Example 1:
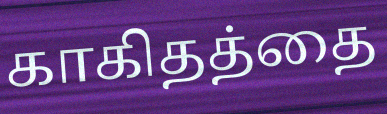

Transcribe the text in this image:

காகிதத்தை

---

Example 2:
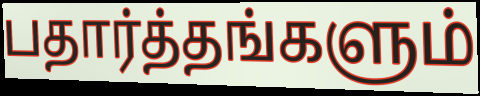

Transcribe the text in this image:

பதார்த்தங்களும்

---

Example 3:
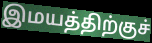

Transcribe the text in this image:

இமயத்திற்குச்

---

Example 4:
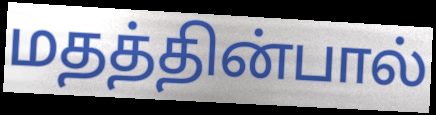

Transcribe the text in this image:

மதத்தின்பால்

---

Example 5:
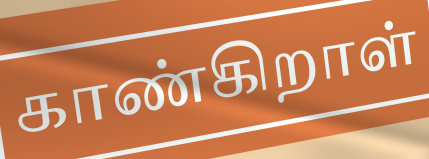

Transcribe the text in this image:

காண்கிறாள்